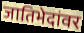
जातिभेदांवर